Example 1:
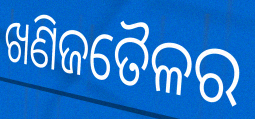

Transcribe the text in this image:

ଖଣିଜତୈଳର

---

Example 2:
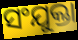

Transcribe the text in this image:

ସଂଯୁକ୍ତା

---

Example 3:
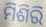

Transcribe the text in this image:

ମିଶିରି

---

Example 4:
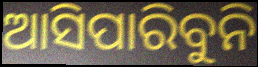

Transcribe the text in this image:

ଆସିପାରିବୁନି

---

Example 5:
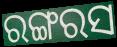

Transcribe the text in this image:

ରଙ୍ଗରସ